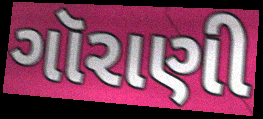
ગૉરાણી